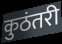
कुठंतरी